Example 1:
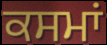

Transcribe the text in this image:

ਕਸਮਾਂ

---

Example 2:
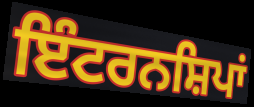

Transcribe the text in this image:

ਇੰਟਰਨਸ਼ਿਪਾਂ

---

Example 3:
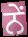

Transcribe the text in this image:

ਨੇਂ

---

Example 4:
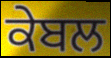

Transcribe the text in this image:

ਕੇਬਲ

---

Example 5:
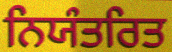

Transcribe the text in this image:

ਨਿਯੰਤਰਿਤ